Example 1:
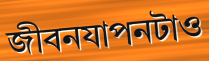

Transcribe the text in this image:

জীবনযাপনটাও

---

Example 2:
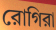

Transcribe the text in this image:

রোগিরা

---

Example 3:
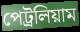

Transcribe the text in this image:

পেট্রলিয়াম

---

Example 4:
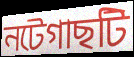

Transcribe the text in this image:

নটেগাছটি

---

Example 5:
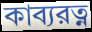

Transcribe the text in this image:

কাব্যরত্ন